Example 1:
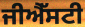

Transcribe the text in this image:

ਜੀਐੱਸਟੀ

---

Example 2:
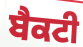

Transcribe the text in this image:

ਬੈਕਟੀ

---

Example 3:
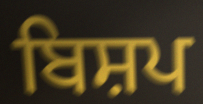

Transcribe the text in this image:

ਬਿਸ਼ਪ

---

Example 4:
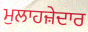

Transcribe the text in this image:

ਮੁਲਾਹਜ਼ੇਦਾਰ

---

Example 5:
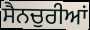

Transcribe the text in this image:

ਸੈਨਚੁਰੀਆਂ